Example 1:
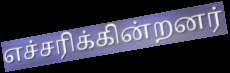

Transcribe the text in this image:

எச்சரிக்கின்றனர்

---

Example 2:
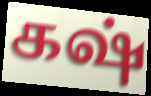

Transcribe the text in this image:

கஷ்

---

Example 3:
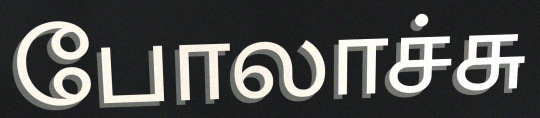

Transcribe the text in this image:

போலாச்சு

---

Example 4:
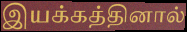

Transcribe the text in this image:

இயக்கத்தினால்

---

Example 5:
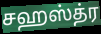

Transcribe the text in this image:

சஹஸ்த்ர